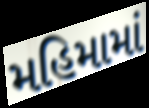
મહિમામાં